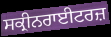
ਸਕ੍ਰੀਨਰਾਈਟਰਜ਼